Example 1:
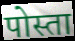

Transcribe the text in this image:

पोस्ता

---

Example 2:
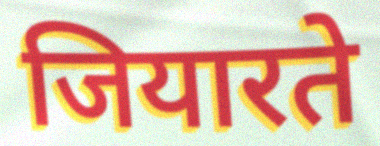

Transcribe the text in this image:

जियारते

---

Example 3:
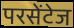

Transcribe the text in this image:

परसेंटेज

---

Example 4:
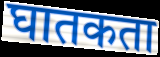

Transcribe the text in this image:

घातकता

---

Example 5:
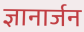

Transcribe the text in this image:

ज्ञानार्जन